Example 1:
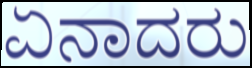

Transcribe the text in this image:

ಏನಾದರು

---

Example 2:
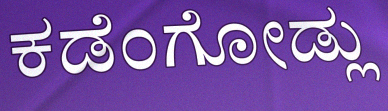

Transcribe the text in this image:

ಕಡೆಂಗೋಡ್ಲು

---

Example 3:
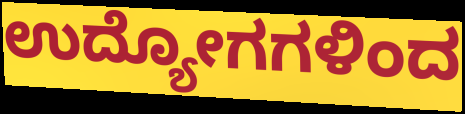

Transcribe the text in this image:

ಉದ್ಯೋಗಗಳಿಂದ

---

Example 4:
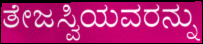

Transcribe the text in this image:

ತೇಜಸ್ವಿಯವರನ್ನು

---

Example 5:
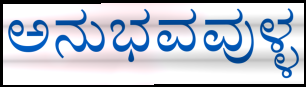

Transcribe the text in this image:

ಅನುಭವವುಳ್ಳ